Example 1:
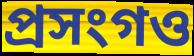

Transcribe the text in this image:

প্ৰসংগও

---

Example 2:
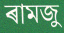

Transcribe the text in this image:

ৰামজু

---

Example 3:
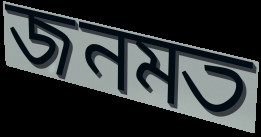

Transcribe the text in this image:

জনমত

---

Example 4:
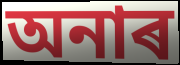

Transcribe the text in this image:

অনাৰ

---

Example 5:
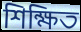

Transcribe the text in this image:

শিক্ষিত